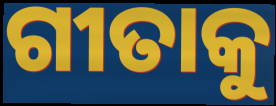
ଗୀତାକୁ